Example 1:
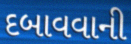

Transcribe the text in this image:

દબાવવાની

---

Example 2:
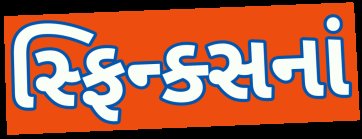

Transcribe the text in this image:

સ્ફિન્ક્સનાં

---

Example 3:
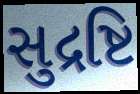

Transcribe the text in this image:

સુદ્રષ્ટિ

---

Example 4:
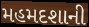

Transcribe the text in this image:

મહમદશાની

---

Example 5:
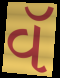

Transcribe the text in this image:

વૅ